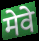
मेवे